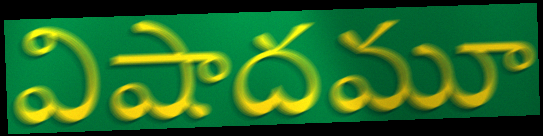
విషాదమూ